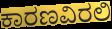
ಕಾರಣವಿರಲಿ